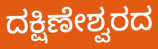
ದಕ್ಷಿಣೇಶ್ವರದ